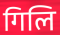
गिलि